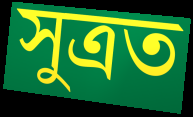
সুত্ৰত